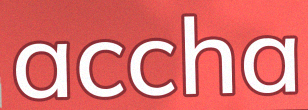
accha